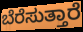
ಬೆರೆಸುತ್ತಾರೆ